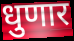
धुणार